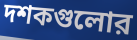
দশকগুলোর